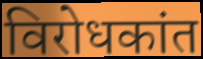
विरोधकांत